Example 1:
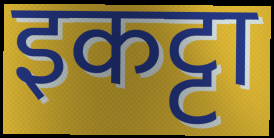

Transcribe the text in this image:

इकट्टा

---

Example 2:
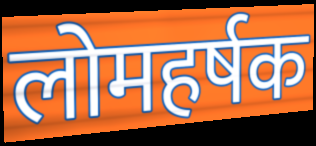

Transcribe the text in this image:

लोमहर्षक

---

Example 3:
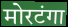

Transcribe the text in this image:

मोरटंगा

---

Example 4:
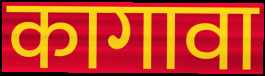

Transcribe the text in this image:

कागावा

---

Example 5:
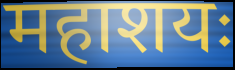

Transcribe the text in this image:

महाशयः